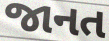
જાનત